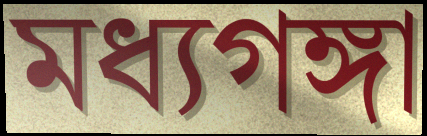
মধ্যগঙ্গা